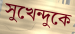
সুখেন্দুকে